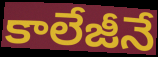
కాలేజీనే